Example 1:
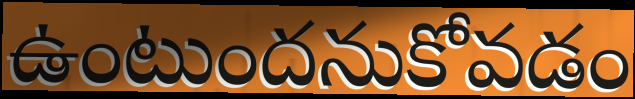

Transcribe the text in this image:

ఉంటుందనుకోవడం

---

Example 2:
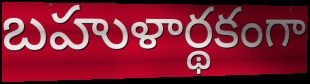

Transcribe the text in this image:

బహుళార్థకంగా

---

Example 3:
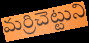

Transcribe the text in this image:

మర్రిచెట్టుని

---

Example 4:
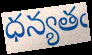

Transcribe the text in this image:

ధన్యతఁ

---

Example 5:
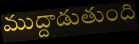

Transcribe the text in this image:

ముద్దాడుతుంది